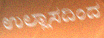
ಉಲ್ಲಾಸದಿಂದ